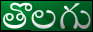
తొలగు